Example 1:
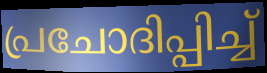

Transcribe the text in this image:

പ്രചോദിപ്പിച്ച്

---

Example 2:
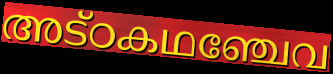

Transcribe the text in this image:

അട്ഠകഥഞ്ചേവ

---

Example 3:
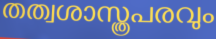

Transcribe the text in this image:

തത്വശാസ്ത്രപരവും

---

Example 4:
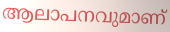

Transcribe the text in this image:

ആലാപനവുമാണ്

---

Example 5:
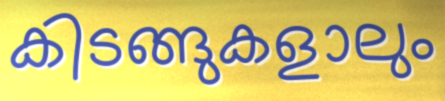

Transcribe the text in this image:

കിടങ്ങുകളാലും